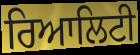
ਰਿਆਲਿਟੀ